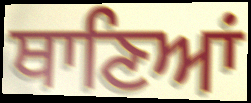
ਥਾਣਿਆਂ